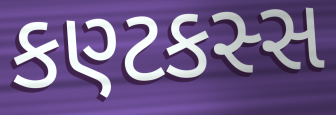
કણ્ટકસ્સ